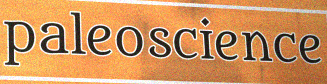
paleoscience